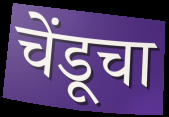
चेंडूचा